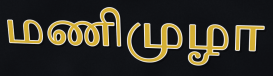
மணிமுழா